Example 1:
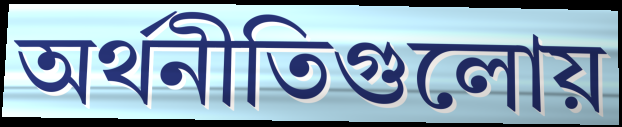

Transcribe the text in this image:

অর্থনীতিগুলোয়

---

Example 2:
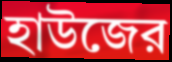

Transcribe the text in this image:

হাউজের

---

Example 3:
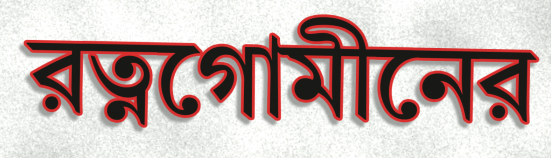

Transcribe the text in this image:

রত্নগোমীনের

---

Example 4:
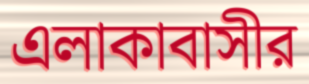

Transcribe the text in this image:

এলাকাবাসীর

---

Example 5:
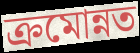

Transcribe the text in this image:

ক্রমোন্নত